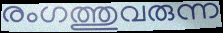
രംഗത്തുവരുന്ന